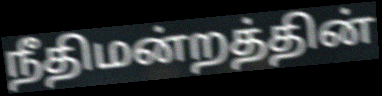
நீதிமன்றத்தின்